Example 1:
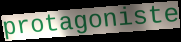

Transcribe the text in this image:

protagoniste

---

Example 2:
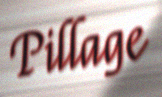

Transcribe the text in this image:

Pillage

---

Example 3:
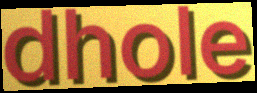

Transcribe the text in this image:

dhole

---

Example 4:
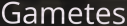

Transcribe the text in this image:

Gametes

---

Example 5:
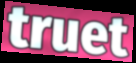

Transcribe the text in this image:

truet